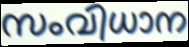
സംവിധാന